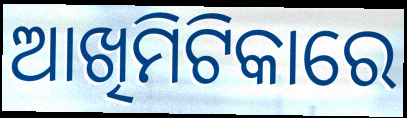
ଆଖିମିଟିକାରେ